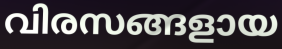
വിരസങ്ങളായ